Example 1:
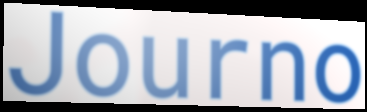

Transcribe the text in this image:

Journo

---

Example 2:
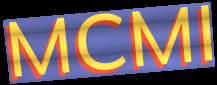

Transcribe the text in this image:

MCMI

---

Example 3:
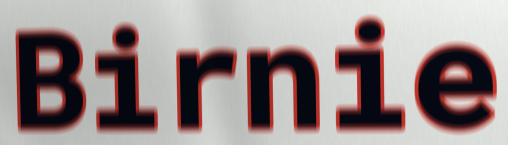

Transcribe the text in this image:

Birnie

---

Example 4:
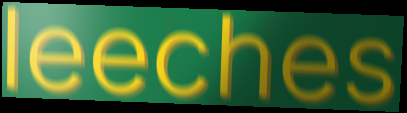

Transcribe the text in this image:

leeches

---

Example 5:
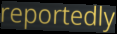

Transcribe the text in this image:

reportedly